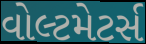
વોલ્ટમેટર્સ